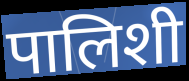
पालिशी